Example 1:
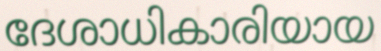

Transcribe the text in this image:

ദേശാധികാരിയായ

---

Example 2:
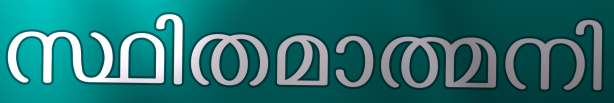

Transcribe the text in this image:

സ്ഥിതമാത്മനി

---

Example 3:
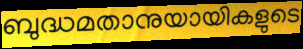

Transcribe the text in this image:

ബുദ്ധമതാനുയായികളുടെ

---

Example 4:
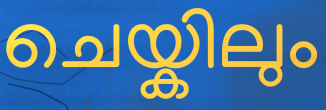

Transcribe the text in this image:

ചെയ്കിലും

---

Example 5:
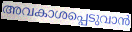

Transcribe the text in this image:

അവകാശപ്പെടുവാൻ